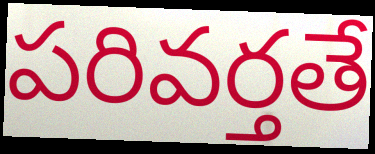
పరివర్తతే